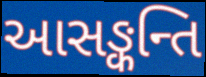
આસઙ્કન્તિ